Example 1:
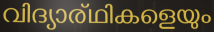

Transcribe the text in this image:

വിദ്യാര്ഥികളെയും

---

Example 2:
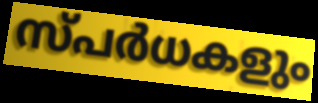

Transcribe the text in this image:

സ്പർധകളും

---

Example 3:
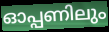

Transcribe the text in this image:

ഓപ്പണിലും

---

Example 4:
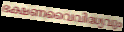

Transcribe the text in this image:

ഭക്ഷണവൈവിദ്ധ്യവും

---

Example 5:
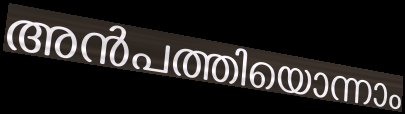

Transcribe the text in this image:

അൻപത്തിയൊന്നാം